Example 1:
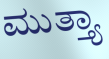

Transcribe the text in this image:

ಮುತ್ತ್ಯಾ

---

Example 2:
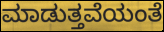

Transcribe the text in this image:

ಮಾಡುತ್ತವೆಯಂತೆ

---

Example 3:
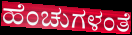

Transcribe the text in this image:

ಹೆಂಚುಗಳಂತೆ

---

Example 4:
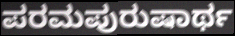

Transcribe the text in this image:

ಪರಮಪುರುಷಾರ್ಥ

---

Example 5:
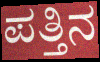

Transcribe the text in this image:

ಪತ್ತಿನ